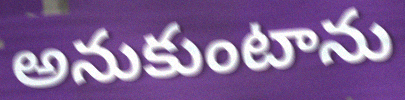
అనుకుంటాను